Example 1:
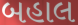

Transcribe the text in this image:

બહાલ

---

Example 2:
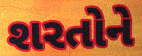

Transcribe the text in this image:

શરતોને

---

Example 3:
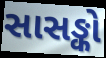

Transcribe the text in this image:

સાસઙ્કો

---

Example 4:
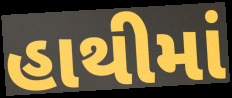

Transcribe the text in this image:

હાથીમાં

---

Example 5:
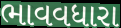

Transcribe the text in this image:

ભાવવધારા